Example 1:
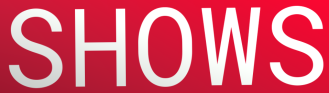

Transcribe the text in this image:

SHOWS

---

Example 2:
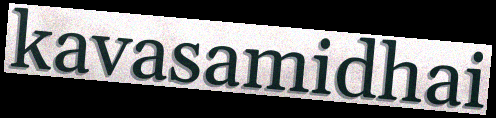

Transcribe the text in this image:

kavasamidhai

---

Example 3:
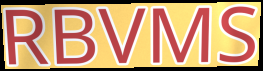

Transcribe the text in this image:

RBVMS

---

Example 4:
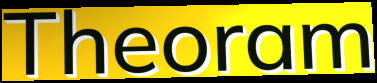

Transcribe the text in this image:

Theoram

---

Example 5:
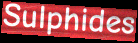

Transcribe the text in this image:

Sulphides